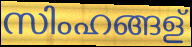
സിംഹങ്ങള്